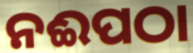
ନଈପଠା